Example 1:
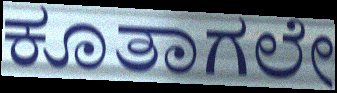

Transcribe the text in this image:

ಕೂತಾಗಲೇ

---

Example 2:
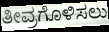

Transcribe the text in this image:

ತೀವ್ರಗೊಳಿಸಲು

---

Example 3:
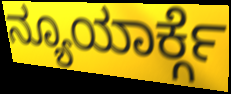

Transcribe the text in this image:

ನ್ಯೂಯಾರ್ಕ್ಗೆ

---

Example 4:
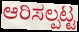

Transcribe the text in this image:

ಆರಿಸಲ್ಪಟ್ಟ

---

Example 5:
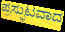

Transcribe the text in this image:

ಪ್ರಸ್ಫುಟವಾದ